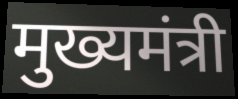
मुख्‍यमंत्री